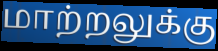
மாற்றலுக்கு